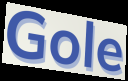
Gole